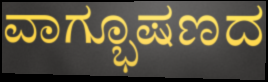
ವಾಗ್ಭೂಷಣದ